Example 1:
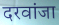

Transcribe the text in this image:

दरवांजा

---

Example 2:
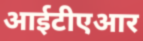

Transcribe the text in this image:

आईटीएआर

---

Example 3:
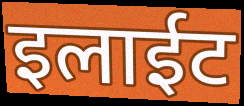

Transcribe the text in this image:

इलाईट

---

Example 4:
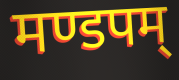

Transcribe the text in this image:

मण्डपम्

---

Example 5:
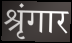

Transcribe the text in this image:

श्रृंगार